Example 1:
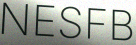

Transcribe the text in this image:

NESFB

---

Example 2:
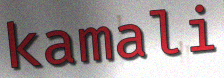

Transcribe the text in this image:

kamali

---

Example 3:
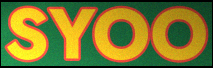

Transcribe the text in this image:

SYOO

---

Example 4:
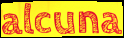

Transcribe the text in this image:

alcuna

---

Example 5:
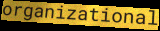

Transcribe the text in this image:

organizational